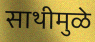
साथीमुळे